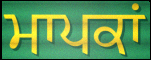
ਮਾਪਕਾਂ